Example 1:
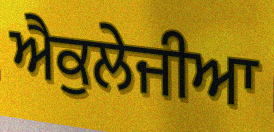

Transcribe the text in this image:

ਐਕੁਲੇਜੀਆ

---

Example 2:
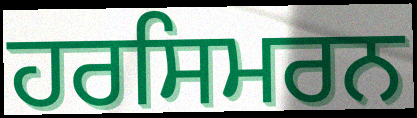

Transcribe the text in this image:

ਹਰਸਿਮਰਨ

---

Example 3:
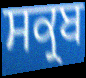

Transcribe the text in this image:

ਸਕ੍ਰਬ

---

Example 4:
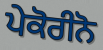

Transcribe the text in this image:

ਪੇਕੋਰੀਨੋ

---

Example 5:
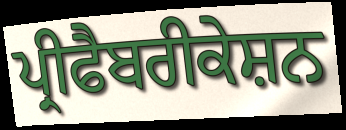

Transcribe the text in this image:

ਪ੍ਰੀਫੈਬਰੀਕੇਸ਼ਨ